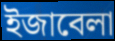
ইজাবেলা